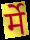
र्मे